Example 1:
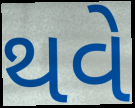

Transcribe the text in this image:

થવે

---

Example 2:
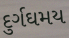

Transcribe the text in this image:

દુર્ગઘમય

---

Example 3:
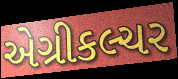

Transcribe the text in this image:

એગ્રીકલ્ચર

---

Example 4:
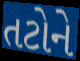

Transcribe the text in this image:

તટોને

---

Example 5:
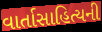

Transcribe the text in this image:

વાર્તાસાહિત્યની